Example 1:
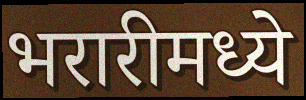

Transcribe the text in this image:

भरारीमध्ये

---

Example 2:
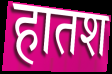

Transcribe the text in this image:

हातश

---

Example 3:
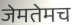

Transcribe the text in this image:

जेमतेमच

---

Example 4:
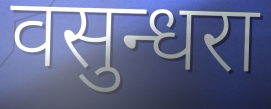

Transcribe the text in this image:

वसुन्धरा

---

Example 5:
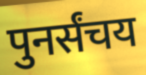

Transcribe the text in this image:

पुनर्संचय